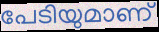
പേടിയുമാണ്